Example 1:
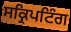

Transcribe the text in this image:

ਸਕ੍ਰਿਪਟਿੰਗ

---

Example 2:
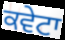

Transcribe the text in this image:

ਕਵੇਟਾ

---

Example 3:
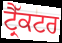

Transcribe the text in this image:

ਟ੍ਰੈੱਕਟਰ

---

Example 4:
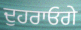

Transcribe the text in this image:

ਦੁਹਰਾਓਗੇ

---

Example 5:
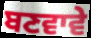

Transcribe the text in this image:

ਬਣਵਾਵੇ